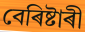
বেৰিষ্টাৰী